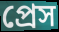
প্রেস